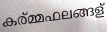
കര്മ്മഫലങ്ങള്